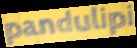
pandulipi